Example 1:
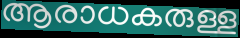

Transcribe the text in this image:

ആരാധകരുള്ള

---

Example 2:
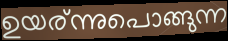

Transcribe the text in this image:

ഉയര്ന്നുപൊങ്ങുന്ന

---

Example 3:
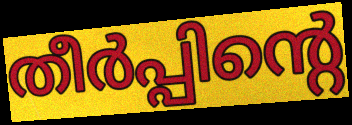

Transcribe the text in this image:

തീർപ്പിന്റെ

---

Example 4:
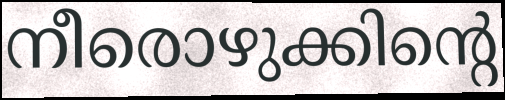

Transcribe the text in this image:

നീരൊഴുക്കിന്റെ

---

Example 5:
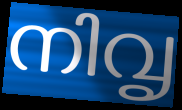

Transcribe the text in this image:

നിവൃ